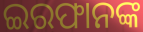
ଇରଫାନଙ୍କ